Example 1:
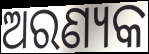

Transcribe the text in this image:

ଅରଣ୍ୟକ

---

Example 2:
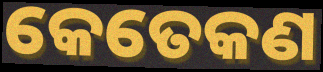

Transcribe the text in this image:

କେତେକଣ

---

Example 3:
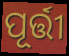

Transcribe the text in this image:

ପୂର୍ତ୍ତୀ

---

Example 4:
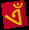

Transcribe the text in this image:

ଏଁ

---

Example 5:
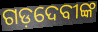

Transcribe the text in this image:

ଗଡ଼ଦେବୀଙ୍କ